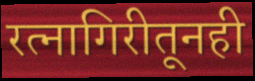
रत्नागिरीतूनही